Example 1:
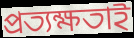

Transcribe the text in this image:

প্রত্যক্ষতাই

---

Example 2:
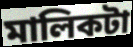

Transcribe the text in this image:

মালিকটা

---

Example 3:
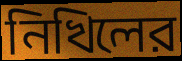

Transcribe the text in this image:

নিখিলের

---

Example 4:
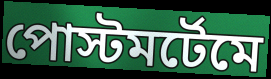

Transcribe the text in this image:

পোস্টমর্টেমে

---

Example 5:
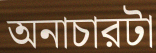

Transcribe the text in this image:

অনাচারটা